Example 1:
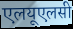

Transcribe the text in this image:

एलयूएलसी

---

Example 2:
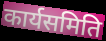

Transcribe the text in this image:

कार्यसमिति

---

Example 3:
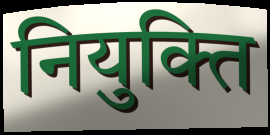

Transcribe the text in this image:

नियुक्‍ति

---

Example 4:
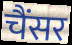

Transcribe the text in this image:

चैंसर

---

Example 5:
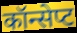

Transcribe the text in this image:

कॉन्सेप्ट